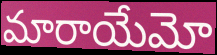
మారాయేమో